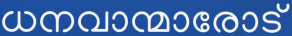
ധനവാന്മാരോട്